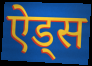
ऐड्स